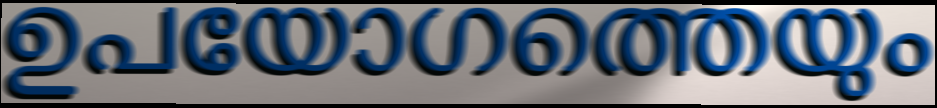
ഉപയോഗത്തെയും